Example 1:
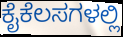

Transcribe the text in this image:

ಕೈಕೆಲಸಗಳಲ್ಲಿ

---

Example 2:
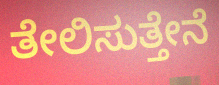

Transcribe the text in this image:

ತೇಲಿಸುತ್ತೇನೆ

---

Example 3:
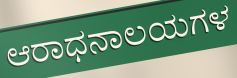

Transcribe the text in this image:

ಆರಾಧನಾಲಯಗಳ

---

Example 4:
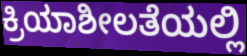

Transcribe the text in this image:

ಕ್ರಿಯಾಶೀಲತೆಯಲ್ಲಿ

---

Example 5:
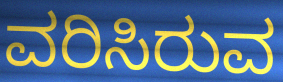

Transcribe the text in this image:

ವರಿಸಿರುವ